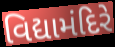
વિદ્યામંદિરે